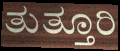
ತುತ್ತೂರಿ